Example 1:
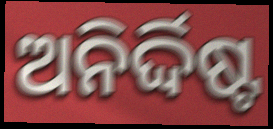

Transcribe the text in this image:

ଅନିର୍ଦ୍ଦିଷ୍ଟ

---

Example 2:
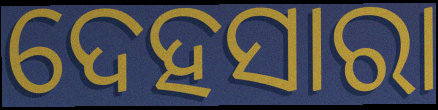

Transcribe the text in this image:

ଦେହସାରା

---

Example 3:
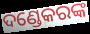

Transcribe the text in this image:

ଦଣ୍ଡେକରଙ୍କ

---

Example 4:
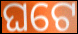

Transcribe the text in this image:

ଘଟେ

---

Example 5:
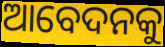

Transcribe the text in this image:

ଆବେଦନକୁ